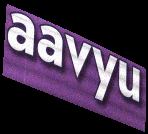
aavyu